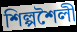
শিল্পশৈলী